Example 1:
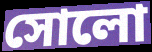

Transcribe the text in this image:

সোলো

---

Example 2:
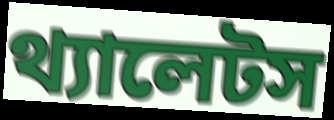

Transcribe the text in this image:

থ্যালেটস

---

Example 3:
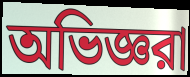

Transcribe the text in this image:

অভিজ্ঞরা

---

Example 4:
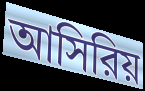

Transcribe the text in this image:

আসিরিয়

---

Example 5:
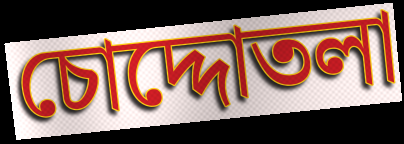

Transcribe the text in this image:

চোদ্দোতলা